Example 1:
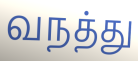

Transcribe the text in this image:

வநத்து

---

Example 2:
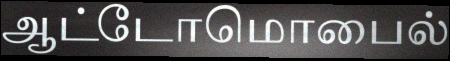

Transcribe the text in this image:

ஆட்டோமொபைல்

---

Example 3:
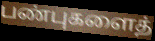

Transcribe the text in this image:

பண்புகளைத்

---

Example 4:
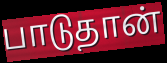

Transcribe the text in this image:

பாடுதான்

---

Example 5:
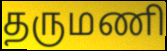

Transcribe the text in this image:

தருமணி